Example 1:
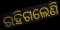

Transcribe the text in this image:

ରହିଗଲେଣି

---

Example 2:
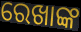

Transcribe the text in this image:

ରେଖାଙ୍କ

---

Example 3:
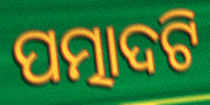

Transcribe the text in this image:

ପତ୍ମାଦଟି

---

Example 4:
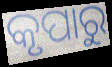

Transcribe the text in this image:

କୃପାରୁ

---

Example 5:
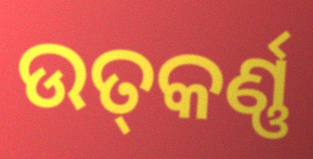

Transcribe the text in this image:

ଉତ୍‍କର୍ଣ୍ଣ